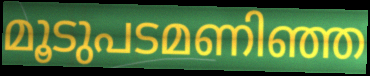
മൂടുപടമണിഞ്ഞ